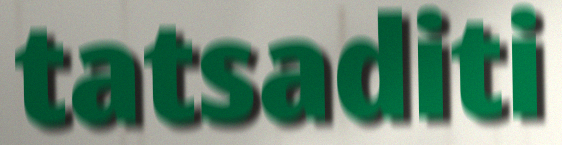
tatsaditi